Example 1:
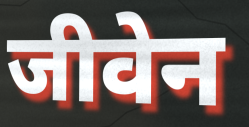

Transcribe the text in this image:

जीवेन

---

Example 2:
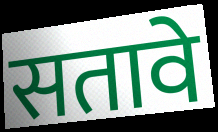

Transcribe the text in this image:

सतावे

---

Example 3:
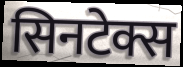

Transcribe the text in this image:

सिनटेक्स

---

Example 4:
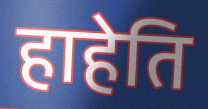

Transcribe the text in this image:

हाहेति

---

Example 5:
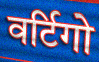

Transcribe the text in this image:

वर्टिगो